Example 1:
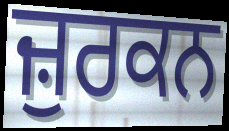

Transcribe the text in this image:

ਜ਼ੁਰਕਨ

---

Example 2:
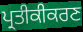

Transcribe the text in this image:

ਪ੍ਰਤੀਕੀਕਰਣ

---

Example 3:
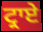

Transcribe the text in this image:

ਟ੍ਰਾਏ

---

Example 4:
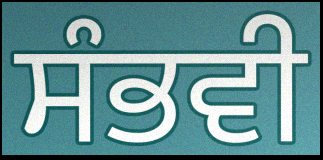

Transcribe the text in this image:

ਸੰਭਵੀ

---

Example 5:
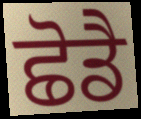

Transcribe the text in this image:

ਛੋਡੈ